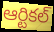
ఆర్టికల్